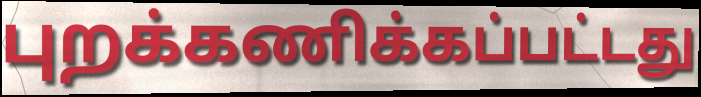
புறக்கணிக்கப்பட்டது